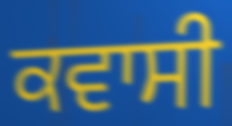
ਕਵਾਸੀ